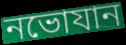
নভোযান